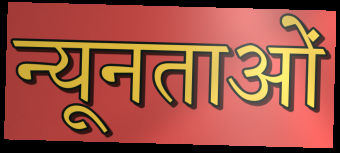
न्यूनताओं